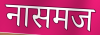
नासमज